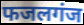
फजलगंज